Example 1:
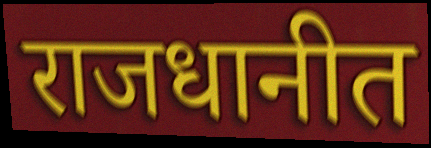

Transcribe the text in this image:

राजधानीत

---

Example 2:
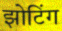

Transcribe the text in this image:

झोटिंग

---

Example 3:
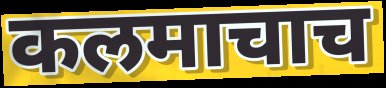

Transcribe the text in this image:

कलमाचाच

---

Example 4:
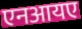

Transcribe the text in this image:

एनआयए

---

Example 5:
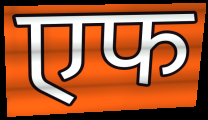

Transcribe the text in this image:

एफ